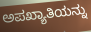
ಅಪಖ್ಯಾತಿಯನ್ನು